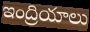
ఇంద్రియాలు